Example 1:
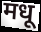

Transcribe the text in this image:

मधू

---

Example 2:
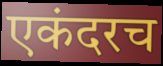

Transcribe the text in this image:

एकंदरच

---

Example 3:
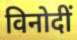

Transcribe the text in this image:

विनोदीं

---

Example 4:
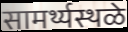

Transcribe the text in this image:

सामर्थ्यस्थळे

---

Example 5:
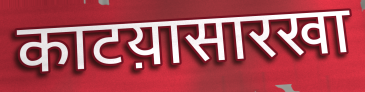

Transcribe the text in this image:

काटय़ासारखा